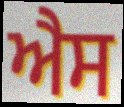
ਐਸ